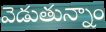
వెడుతున్నాం